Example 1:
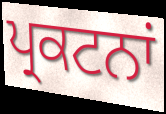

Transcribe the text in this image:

ਪ੍ਰਕਟਨਾਂ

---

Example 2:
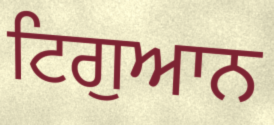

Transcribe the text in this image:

ਟਿਗੁਆਨ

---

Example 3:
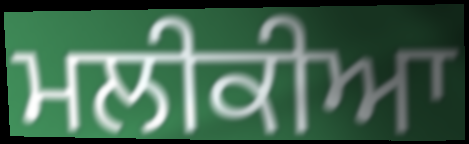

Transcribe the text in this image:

ਮਲੀਕੀਆ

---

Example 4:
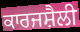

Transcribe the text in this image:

ਕਾਰਜਸ਼ੈਲੀ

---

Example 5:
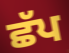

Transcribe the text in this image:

ਛੱਪ